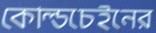
কোল্ডচেইনের